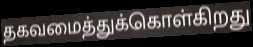
தகவமைத்துக்கொள்கிறது